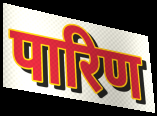
पारिण